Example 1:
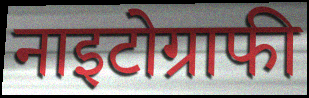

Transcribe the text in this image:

नाइटोग्राफी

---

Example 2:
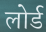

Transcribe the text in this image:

लोर्ड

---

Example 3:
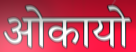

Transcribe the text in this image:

ओकायो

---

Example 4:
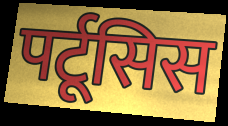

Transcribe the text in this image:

पर्टूसिस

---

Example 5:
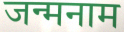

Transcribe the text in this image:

जन्मनाम